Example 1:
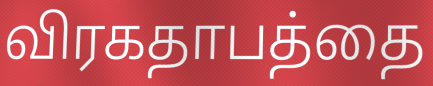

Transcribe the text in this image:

விரகதாபத்தை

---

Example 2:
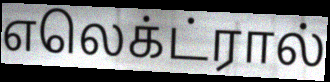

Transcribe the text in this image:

எலெக்ட்ரால்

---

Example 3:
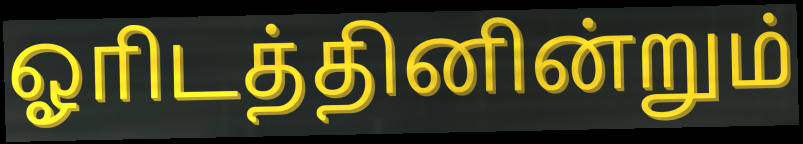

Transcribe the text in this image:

ஓரிடத்தினின்றும்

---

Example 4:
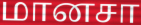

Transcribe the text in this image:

மானசா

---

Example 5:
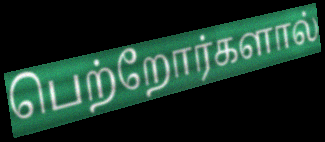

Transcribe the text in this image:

பெற்றோர்களால்